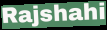
Rajshahi